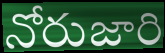
నోరుజారి